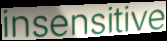
insensitive